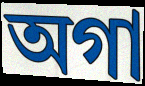
অগা